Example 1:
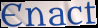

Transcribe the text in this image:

Enact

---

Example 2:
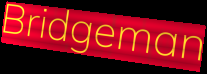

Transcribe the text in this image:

Bridgeman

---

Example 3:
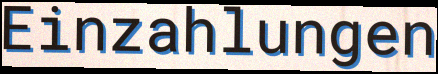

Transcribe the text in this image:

Einzahlungen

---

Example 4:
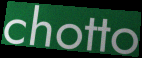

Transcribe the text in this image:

chotto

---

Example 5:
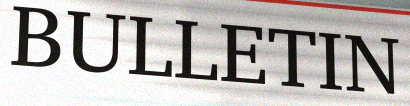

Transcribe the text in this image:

BULLETIN